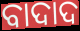
ବାଦାଦ